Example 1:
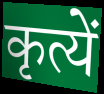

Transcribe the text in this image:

कृत्यें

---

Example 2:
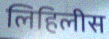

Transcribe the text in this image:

लिहिलीस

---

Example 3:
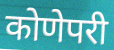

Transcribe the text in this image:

कोणेपरी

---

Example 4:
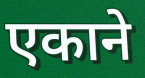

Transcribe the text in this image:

एकाने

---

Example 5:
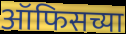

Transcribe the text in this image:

ऑफिसच्या